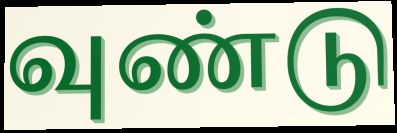
வுண்டு